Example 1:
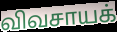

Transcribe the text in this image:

விவசாயக்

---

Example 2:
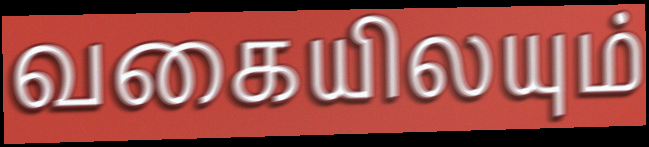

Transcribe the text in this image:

வகையிலயும்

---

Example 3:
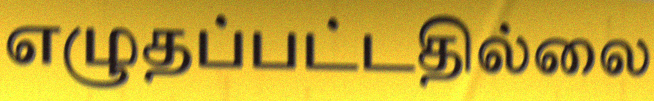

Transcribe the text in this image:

எழுதப்பட்டதில்லை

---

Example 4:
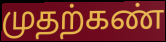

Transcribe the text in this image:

முதற்கண்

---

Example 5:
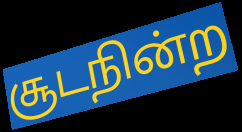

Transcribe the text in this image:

சூடநின்ற